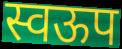
स्वऊप